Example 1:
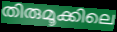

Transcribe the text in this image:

തിരുമൂക്കിലെ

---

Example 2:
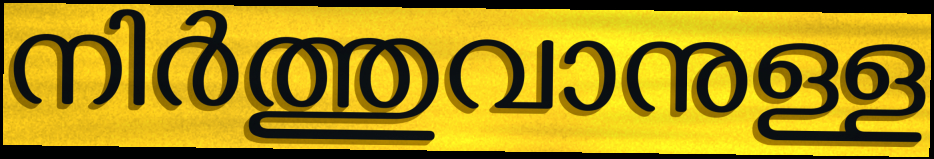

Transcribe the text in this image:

നിർത്തുവാനുള്ള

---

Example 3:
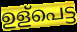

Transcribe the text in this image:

ഉള്പെട്ട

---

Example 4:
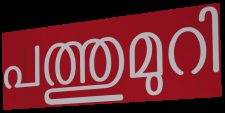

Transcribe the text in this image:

പത്തുമുറി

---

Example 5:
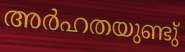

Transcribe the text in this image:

അർഹതയുണ്ടു്